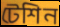
টেশিন